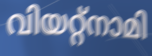
വിയറ്റ്നാമി